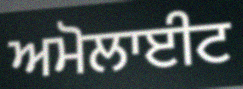
ਅਮੋਲਾਈਟ